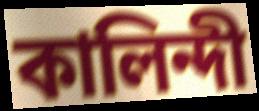
কালিন্দী